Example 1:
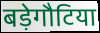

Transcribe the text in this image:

बड़ेगौटिया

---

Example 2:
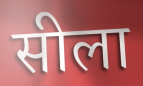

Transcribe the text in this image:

सीला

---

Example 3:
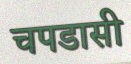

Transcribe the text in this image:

चपडासी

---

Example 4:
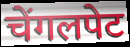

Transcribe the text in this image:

चेंगलपेट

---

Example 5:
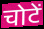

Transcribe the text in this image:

चोटें